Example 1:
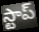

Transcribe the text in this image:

స్టాప్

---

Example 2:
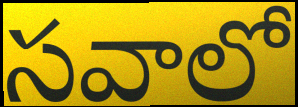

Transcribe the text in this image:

సవాలో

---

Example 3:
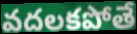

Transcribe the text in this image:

వదలకపోతే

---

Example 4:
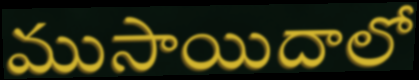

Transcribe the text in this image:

ముసాయిదాలో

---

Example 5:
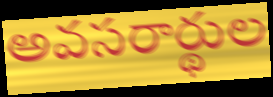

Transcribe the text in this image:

అవసరార్థుల